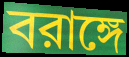
বরাঙ্গে